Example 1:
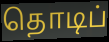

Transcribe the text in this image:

தொடிப்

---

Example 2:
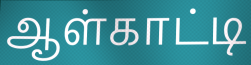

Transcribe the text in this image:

ஆள்காட்டி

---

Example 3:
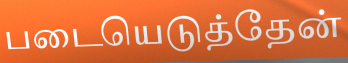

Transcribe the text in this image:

படையெடுத்தேன்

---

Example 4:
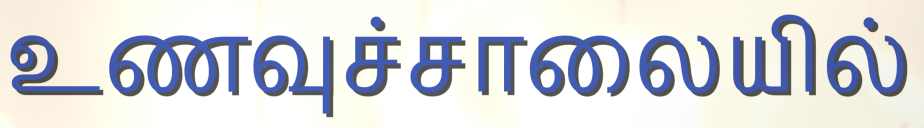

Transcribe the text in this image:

உணவுச்சாலையில்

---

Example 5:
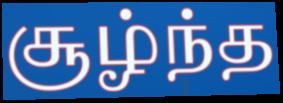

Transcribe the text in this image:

சூழ்ந்த